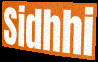
Sidhhi